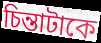
চিন্তাটাকে